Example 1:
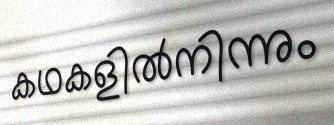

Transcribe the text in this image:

കഥകളിൽനിന്നും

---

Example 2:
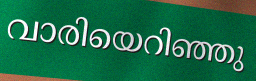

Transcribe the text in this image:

വാരിയെറിഞ്ഞു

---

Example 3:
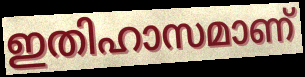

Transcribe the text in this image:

ഇതിഹാസമാണ്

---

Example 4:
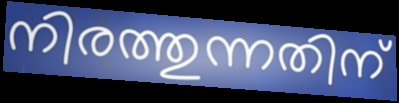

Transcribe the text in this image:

നിരത്തുന്നതിന്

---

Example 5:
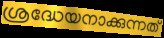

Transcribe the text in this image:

ശ്രദ്ധേയനാക്കുന്നത്